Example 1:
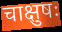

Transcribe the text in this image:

चाक्षुषः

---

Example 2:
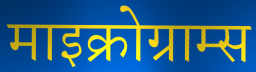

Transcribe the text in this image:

माइक्रोग्राम्स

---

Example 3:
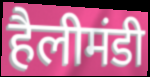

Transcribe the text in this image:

हैलीमंडी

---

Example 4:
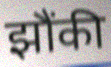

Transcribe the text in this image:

झौंकी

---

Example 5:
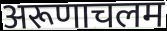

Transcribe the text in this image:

अरूणाचलम